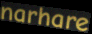
narhare